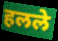
हलले